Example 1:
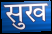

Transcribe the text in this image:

सुख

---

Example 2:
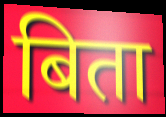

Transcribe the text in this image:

बिता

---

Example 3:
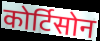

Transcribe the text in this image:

कोर्टिसोन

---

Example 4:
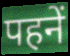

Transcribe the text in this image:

पहनें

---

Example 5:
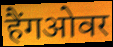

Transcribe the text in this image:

हैंगओवर